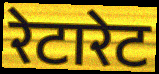
रेटारेट